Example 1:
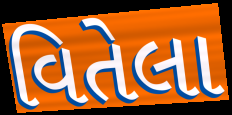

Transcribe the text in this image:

વિતેલા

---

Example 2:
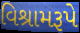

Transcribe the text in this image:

વિશ્રામરૂપે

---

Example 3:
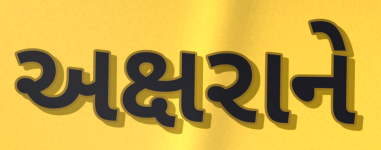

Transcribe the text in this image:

અક્ષરાને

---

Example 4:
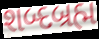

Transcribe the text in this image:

શબ્દબ્રહ્મ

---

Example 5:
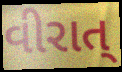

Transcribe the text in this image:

વીરાત્